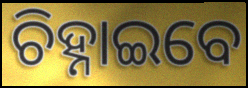
ଚିହ୍ନାଇବେ